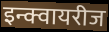
इन्क्वायरीज